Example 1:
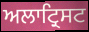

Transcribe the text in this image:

ਅਲਾਟ੍ਰਿਸਟ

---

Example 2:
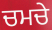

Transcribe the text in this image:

ਚਮਚੇ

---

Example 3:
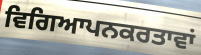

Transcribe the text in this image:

ਵਿਗਿਆਪਨਕਰਤਾਵਾਂ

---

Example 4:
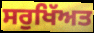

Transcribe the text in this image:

ਸਰੁਖਿੱਅਤ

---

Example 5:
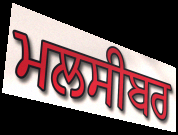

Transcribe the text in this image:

ਮਲਸੀਬਰ